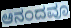
ಆನಂದವೂ